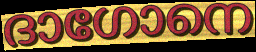
ദാഗോനെ